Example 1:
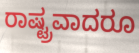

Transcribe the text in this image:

ರಾಷ್ಟ್ರವಾದರೂ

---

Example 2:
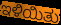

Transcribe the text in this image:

ಇಳಿಯಿತು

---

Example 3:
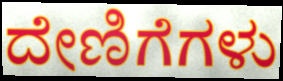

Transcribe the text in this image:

ದೇಣಿಗೆಗಳು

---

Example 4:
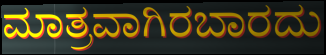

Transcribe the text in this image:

ಮಾತ್ರವಾಗಿರಬಾರದು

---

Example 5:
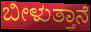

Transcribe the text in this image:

ಬೀಳುತ್ತಾನೆ